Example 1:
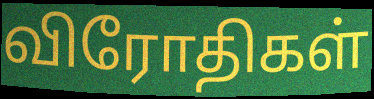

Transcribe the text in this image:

விரோதிகள்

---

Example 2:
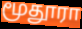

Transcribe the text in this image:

மூதூரா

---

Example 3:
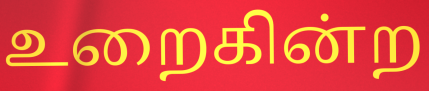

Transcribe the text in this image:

உறைகின்ற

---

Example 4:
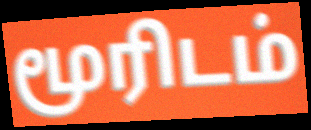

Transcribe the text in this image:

மூரிடம்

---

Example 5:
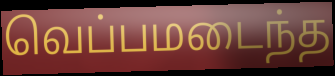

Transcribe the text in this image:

வெப்பமடைந்த